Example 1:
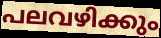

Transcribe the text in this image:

പലവഴിക്കും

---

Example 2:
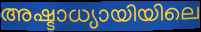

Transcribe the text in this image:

അഷ്ടാധ്യായിയിലെ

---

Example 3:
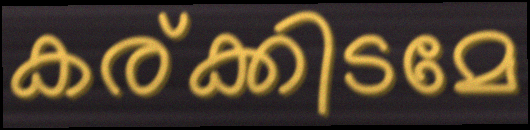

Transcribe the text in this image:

കര്ക്കിടമേ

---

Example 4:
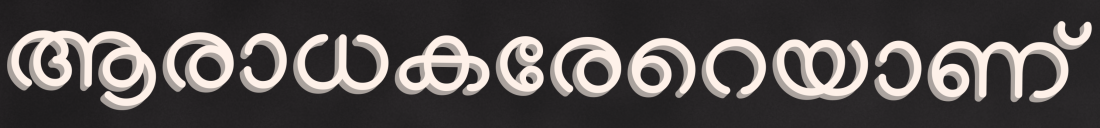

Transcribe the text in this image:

ആരാധകരേറെയാണ്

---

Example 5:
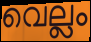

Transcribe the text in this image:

വെല്ലം